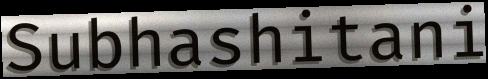
Subhashitani